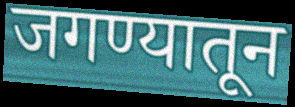
जगण्यातून